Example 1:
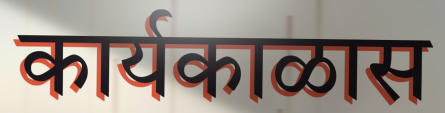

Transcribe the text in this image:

कार्यकाळास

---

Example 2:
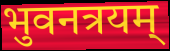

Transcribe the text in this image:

भुवनत्रयम्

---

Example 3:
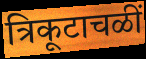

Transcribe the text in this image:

त्रिकूटाचळीं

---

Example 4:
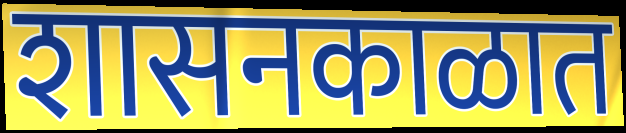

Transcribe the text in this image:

शासनकाळात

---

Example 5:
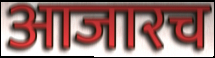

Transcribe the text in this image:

आजारच